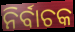
ନିର୍ବାଚକ